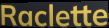
Raclette